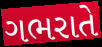
ગભરાતે